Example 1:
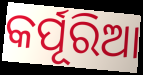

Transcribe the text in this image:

କର୍ପୂରିଆ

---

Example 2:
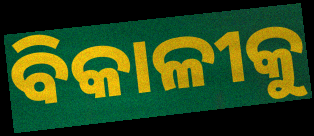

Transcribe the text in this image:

ବିକାଳୀକୁ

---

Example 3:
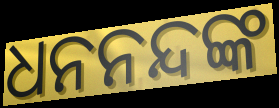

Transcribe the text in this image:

ଧନନନ୍ଦଙ୍କ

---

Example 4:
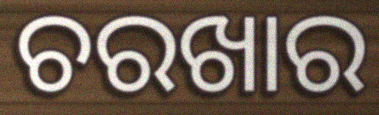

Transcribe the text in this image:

ଚରଖାର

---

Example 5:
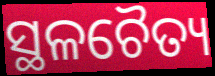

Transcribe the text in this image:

ସ୍ଥଳଚୈତ୍ୟ